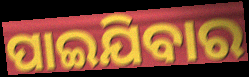
ପାଇଯିବାର